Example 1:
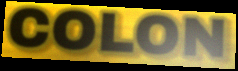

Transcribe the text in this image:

COLON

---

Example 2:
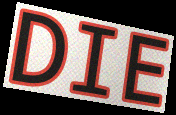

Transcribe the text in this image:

DIE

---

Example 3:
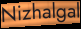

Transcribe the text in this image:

Nizhalgal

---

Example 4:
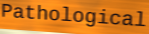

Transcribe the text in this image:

Pathological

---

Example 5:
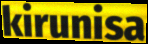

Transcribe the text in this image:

kirunisa